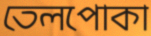
তেলপোকা